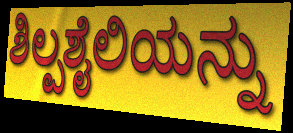
ಶಿಲ್ಪಶೈಲಿಯನ್ನು